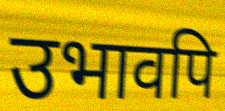
उभावपि